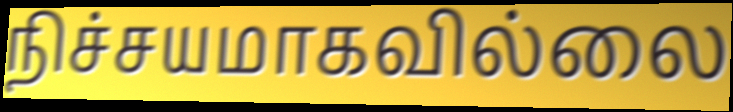
நிச்சயமாகவில்லை